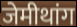
जेमीथांग